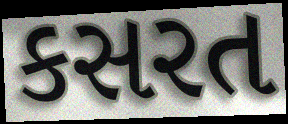
કસરત